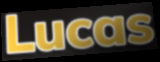
Lucas